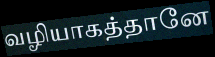
வழியாகத்தானே